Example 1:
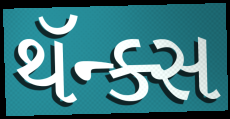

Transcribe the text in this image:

થૅન્ક્સ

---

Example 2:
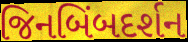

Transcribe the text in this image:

જિનબિંબદર્શન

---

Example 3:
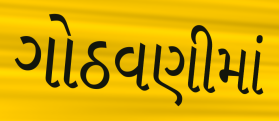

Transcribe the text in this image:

ગોઠવણીમાં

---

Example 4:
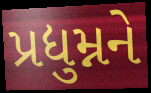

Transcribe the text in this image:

પ્રદ્યુમ્નને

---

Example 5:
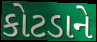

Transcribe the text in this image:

કોટડાને